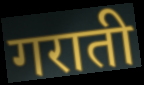
गराती